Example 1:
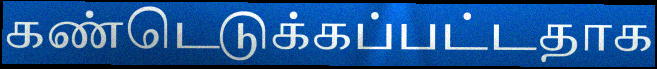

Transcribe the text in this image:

கண்டெடுக்கப்பட்டதாக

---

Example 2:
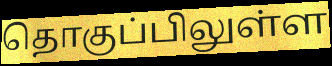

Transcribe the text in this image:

தொகுப்பிலுள்ள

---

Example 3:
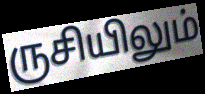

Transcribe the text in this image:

ருசியிலும்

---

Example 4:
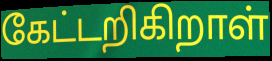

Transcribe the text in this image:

கேட்டறிகிறாள்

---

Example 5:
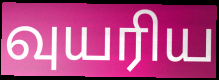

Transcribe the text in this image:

வுயரிய